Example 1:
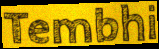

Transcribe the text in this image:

Tembhi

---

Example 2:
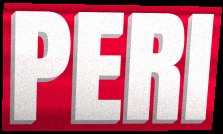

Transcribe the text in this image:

PERI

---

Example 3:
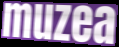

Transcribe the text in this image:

muzea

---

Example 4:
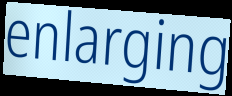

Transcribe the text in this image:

enlarging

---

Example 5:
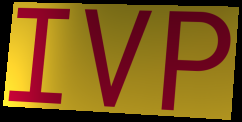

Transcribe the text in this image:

IVP